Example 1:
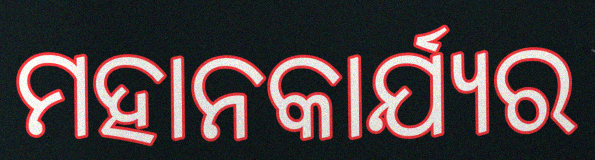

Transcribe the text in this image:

ମହାନକାର୍ଯ୍ୟର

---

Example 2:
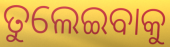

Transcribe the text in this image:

ତୁଲେଇବାକୁ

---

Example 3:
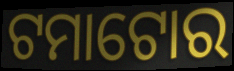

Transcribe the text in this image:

ଟମାଟୋର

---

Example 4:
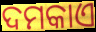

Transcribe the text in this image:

ଦମକାଏ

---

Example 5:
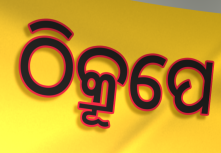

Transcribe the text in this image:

ଠିକ୍ରୂପେ